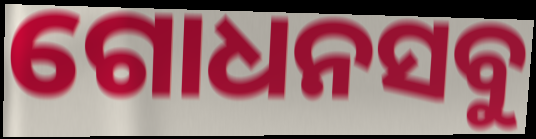
ଗୋଧନସବୁ